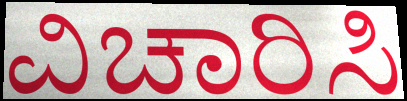
ವಿಚಾರಿಸಿ